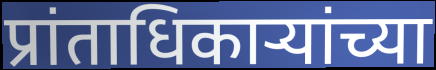
प्रांताधिकाऱ्यांच्या